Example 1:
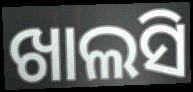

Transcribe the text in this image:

ଖାଲସି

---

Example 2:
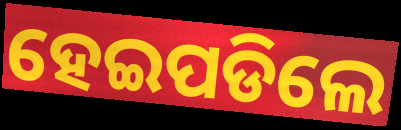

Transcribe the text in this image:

ହେଇପଡିଲେ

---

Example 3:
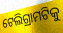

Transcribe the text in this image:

ଟେଲିଗ୍ରାମଟିକୁ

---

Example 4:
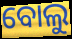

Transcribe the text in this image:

ବୋଲୁ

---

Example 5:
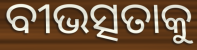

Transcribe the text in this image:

ବୀଭତ୍ସତାକୁ